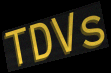
TDVs